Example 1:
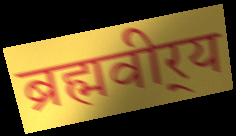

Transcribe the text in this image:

ब्रह्मवीर्य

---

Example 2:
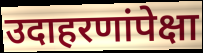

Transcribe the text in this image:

उदाहरणांपेक्षा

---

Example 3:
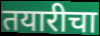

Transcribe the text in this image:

तयारीचा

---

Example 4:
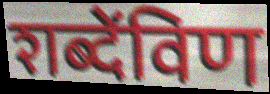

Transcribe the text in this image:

शब्देंविण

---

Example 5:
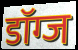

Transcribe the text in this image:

डॉग्ज